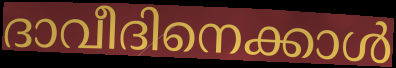
ദാവീദിനെക്കാൾ